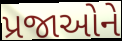
પ્રજાઓને